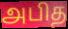
அபித